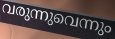
വരുന്നുവെന്നും